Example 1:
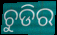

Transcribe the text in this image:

ଚୁଡିର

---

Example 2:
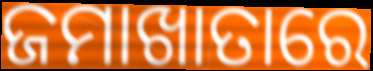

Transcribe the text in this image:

ଜମାଖାତାରେ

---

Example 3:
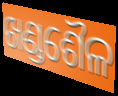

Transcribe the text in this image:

ଖଣ୍ଡଶୈଳ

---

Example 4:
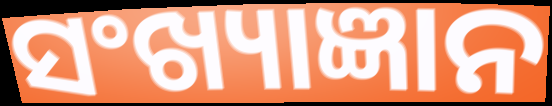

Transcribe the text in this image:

ସଂଖ୍ୟାଜ୍ଞାନ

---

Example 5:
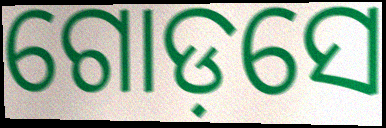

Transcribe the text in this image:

ଗୋଡ଼ସେ